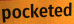
pocketed